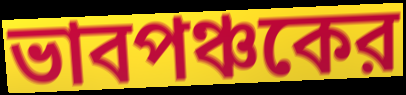
ভাবপঞ্চকের